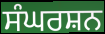
ਸੰਘਰਸ਼ਨ